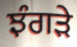
ਝੰਗੜੇ